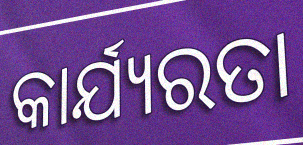
କାର୍ଯ୍ୟରତା